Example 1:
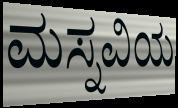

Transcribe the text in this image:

ಮಸ್ನವಿಯ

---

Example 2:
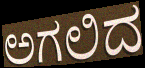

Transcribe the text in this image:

ಅಗಲಿದ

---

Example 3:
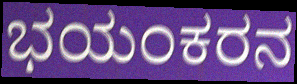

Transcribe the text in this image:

ಭಯಂಕರನ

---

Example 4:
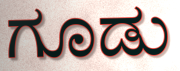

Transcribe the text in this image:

ಗೂಡು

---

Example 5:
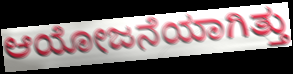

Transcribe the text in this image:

ಆಯೋಜನೆಯಾಗಿತ್ತು